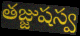
తజ్జుషస్వ